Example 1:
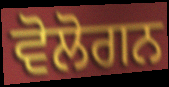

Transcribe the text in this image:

ਵੋਲੋਗਨ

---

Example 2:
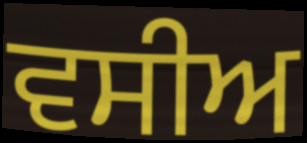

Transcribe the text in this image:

ਵਸੀਅ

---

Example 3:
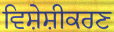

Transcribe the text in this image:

ਵਿਸ਼ੇਸ਼ੀਕਰਣ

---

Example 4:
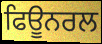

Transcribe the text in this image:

ਫਿਊਨਰਲ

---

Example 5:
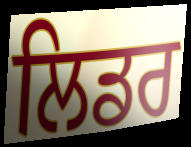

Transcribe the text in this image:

ਲਿਡਰ